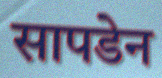
सापडेन